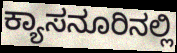
ಕ್ಯಾಸನೂರಿನಲ್ಲಿ